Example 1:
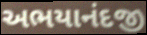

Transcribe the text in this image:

અભયાનંદજી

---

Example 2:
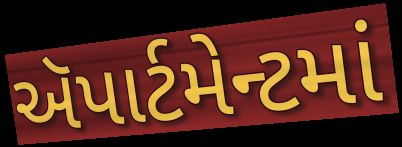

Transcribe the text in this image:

ઍપાર્ટમેન્ટમાં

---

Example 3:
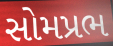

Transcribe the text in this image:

સોમપ્રભ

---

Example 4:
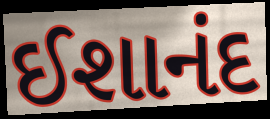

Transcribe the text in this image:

ઈશાનંદ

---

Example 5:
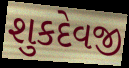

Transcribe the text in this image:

શુકદેવજી